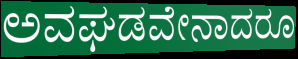
ಅವಘಡವೇನಾದರೂ